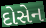
દોસેન